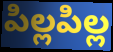
పిల్లపిల్ల